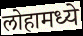
लोहामध्ये